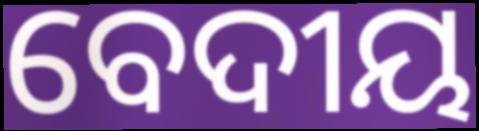
ବେଦୀୟ